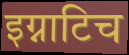
इग्नाटिच